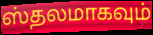
ஸ்தலமாகவும்